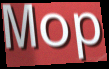
Mop